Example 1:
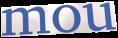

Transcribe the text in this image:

mou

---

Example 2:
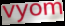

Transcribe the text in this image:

vyom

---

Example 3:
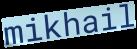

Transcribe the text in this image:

mikhail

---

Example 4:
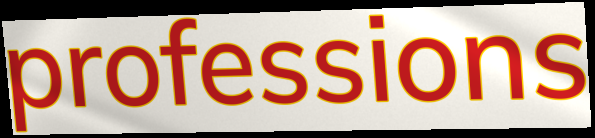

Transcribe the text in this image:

professions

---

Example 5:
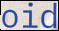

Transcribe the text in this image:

oid